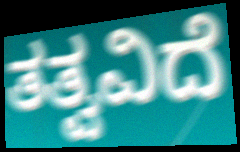
ತತ್ವವಿದೆ